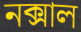
নক্সাল